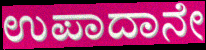
ಉಪಾದಾನೇ